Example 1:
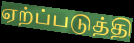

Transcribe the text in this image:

ஏற்ப்படுத்தி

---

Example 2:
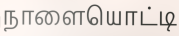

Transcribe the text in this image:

நாளையொட்டி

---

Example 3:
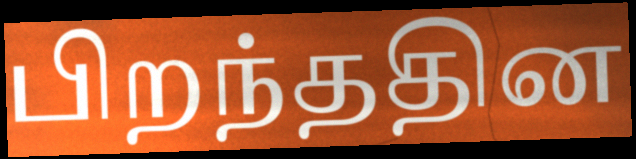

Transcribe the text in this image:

பிறந்ததின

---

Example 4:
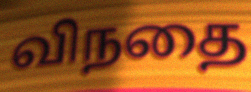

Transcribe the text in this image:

விநதை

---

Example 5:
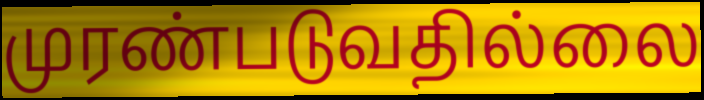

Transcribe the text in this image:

முரண்படுவதில்லை